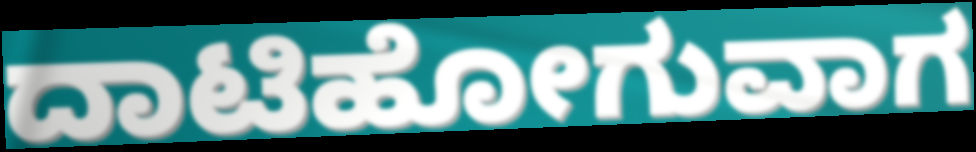
ದಾಟಿಹೋಗುವಾಗ